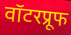
वॉटरप्रूफ